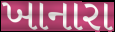
ખાનારા